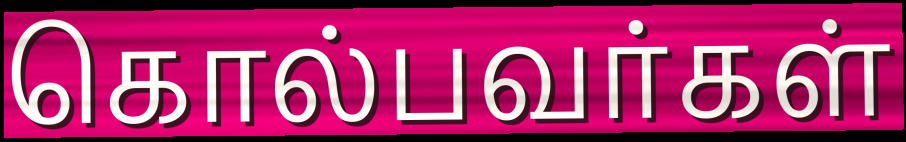
கொல்பவர்கள்